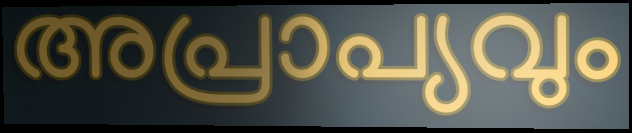
അപ്രാപ്യവും